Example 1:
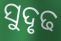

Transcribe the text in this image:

ସୁଦୃଢ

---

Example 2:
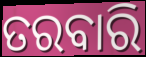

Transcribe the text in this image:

ତରବାରି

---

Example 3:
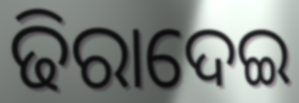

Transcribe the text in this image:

ଢିରାଦେଇ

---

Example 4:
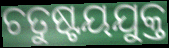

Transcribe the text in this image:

ଚତୁଷ୍ଟୟଯୁକ୍ତ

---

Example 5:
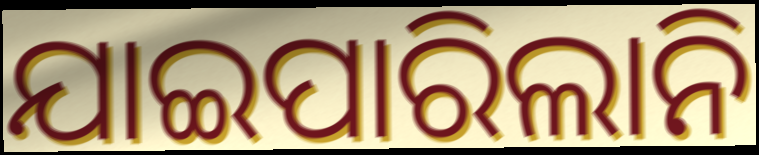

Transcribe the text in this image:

ଯାଇପାରିଲାନି